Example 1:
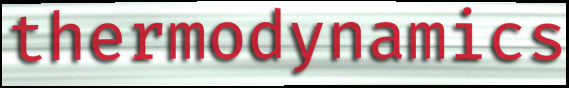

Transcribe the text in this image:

thermodynamics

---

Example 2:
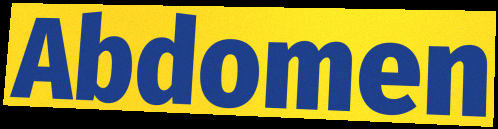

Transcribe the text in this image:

Abdomen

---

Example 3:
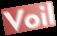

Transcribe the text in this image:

Voil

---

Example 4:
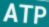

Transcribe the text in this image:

ATP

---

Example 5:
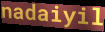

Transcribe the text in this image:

nadaiyil